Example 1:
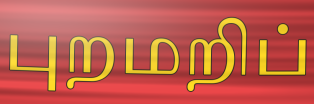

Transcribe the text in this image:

புறமறிப்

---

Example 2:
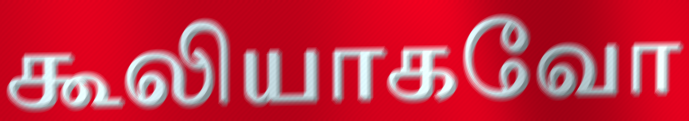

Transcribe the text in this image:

கூலியாகவோ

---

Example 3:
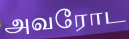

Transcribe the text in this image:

அவரோட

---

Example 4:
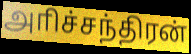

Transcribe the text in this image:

அரிச்சந்திரன்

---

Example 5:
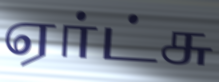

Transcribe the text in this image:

ஏர்ட்சு